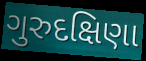
ગુરુદક્ષિણા